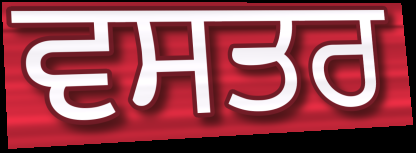
ਵਸਤਰ